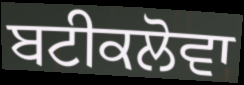
ਬਟੀਕਲੋਵਾ